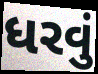
ધરવું